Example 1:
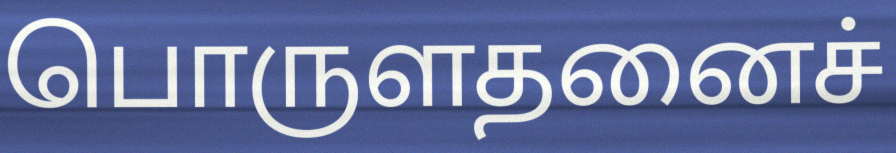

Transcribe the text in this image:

பொருளதனைச்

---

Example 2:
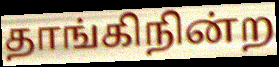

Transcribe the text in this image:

தாங்கிநின்ற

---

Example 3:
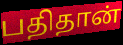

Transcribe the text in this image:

பதிதான்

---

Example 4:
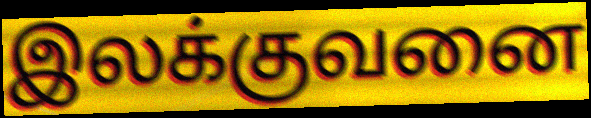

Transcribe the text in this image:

இலக்குவனை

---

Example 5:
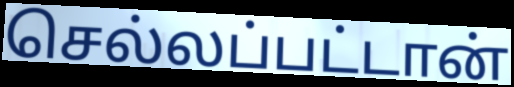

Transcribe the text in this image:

செல்லப்பட்டான்